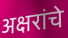
अक्षरांचे